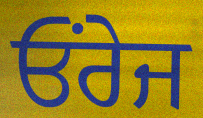
ਓਂਰੇਜ